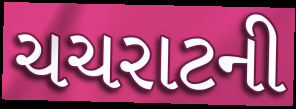
ચચરાટની